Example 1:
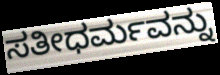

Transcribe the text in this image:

ಸತೀಧರ್ಮವನ್ನು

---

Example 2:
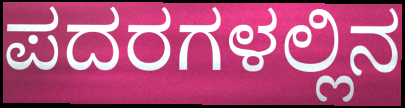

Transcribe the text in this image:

ಪದರಗಳಲ್ಲಿನ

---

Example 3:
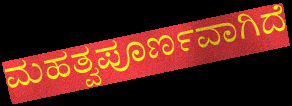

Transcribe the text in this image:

ಮಹತ್ವಪೂರ್ಣವಾಗಿದೆ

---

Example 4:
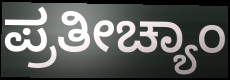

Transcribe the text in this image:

ಪ್ರತೀಚ್ಯಾಂ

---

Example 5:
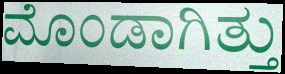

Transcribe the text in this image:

ಮೊಂಡಾಗಿತ್ತು